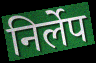
निर्लेप